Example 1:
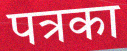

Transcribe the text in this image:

पत्रका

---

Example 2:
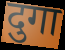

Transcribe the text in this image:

दुगा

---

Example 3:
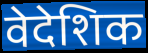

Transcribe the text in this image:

वेदेशिक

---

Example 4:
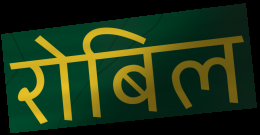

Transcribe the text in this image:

रोबिल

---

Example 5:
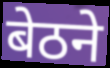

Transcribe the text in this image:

बेठने